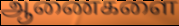
ஆணைகளை